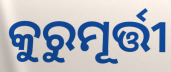
କୁରୁମୂର୍ତ୍ତୀ